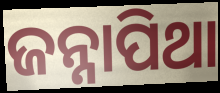
ଜନ୍ନାପିଥା